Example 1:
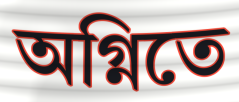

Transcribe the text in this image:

অগ্নিতে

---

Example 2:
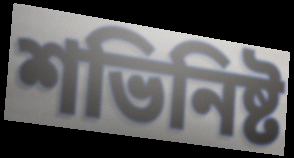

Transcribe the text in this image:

শভিনিষ্ট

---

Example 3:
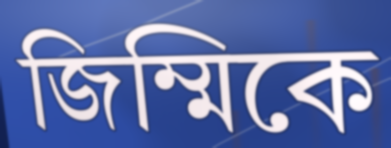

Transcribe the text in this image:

জিম্মিকে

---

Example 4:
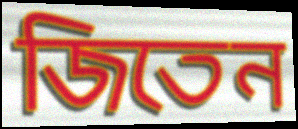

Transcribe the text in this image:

জিতেন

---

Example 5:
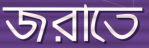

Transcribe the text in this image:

জরাতে